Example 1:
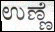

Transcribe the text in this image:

ಉಣ್ಣೆ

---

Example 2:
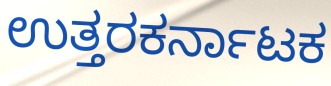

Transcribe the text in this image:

ಉತ್ತರಕರ್ನಾಟಕ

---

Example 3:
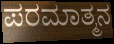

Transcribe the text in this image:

ಪರಮಾತ್ಮನ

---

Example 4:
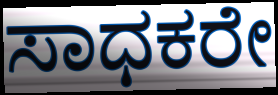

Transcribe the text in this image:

ಸಾಧಕರೇ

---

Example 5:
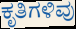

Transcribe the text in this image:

ಕೃತಿಗಳಿವು